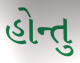
હોન્તુ